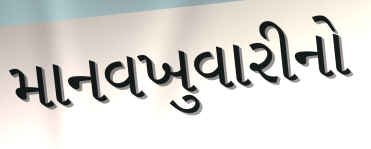
માનવખુવારીનો